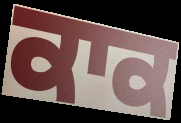
ਕਾਕ